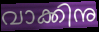
വാക്കിനു